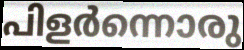
പിളർന്നൊരു